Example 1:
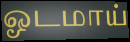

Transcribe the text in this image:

ஓடமாய்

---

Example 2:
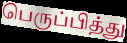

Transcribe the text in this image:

பெருப்பித்து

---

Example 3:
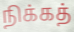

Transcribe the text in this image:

நிக்கத்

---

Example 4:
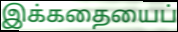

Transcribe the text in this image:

இக்கதையைப்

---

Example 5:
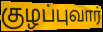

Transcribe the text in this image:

குழப்புவார்